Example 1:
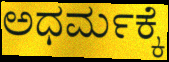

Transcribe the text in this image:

ಅಧರ್ಮಕ್ಕೆ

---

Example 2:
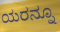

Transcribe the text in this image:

ಯರನ್ನೂ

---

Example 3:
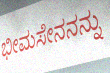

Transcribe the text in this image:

ಭೀಮಸೇನನನ್ನು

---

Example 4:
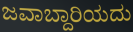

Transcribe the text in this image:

ಜವಾಬ್ದಾರಿಯದು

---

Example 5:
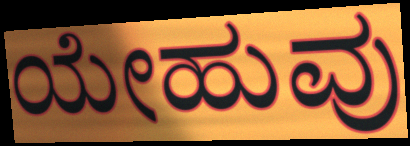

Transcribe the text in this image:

ಯೇಹುವು